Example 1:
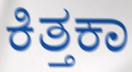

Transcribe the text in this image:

ಕಿತ್ತಕಾ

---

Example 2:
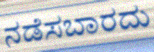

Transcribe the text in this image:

ನಡೆಸಬಾರದು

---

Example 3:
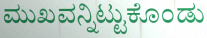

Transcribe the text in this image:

ಮುಖವನ್ನಿಟ್ಟುಕೊಂಡು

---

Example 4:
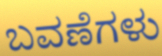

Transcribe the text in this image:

ಬವಣೆಗಳು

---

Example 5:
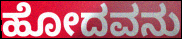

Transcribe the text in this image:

ಹೋದವನು